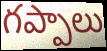
గప్పాలు